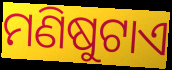
ମଣିଷୁଟାଏ